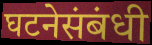
घटनेसंबंधी